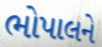
ભોપાલને